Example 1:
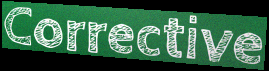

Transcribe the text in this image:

Corrective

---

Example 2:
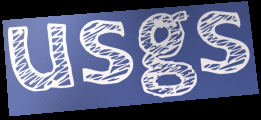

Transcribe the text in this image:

usgs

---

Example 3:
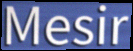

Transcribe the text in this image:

Mesir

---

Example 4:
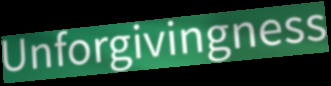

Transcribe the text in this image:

Unforgivingness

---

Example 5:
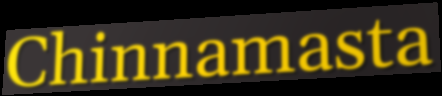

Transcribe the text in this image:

Chinnamasta